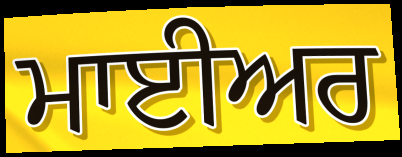
ਮਾਈਅਰ